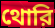
থোরি